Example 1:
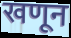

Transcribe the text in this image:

खणून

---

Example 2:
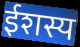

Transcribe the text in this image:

ईशस्य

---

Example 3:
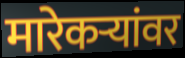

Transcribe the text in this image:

मारेकऱ्यांवर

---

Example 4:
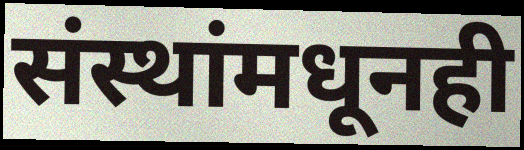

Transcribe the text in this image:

संस्थांमधूनही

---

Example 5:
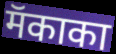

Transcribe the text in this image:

मॅकाका